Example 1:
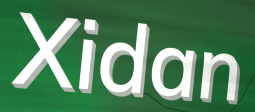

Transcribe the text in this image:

Xidan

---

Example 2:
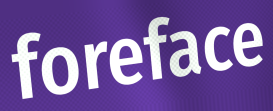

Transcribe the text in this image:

foreface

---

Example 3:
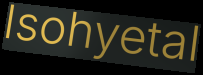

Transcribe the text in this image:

Isohyetal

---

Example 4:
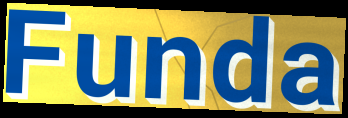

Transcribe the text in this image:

Funda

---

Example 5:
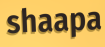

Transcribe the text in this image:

shaapa